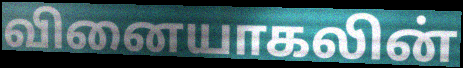
வினையாகலின்